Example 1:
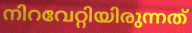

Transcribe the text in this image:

നിറവേറ്റിയിരുന്നത്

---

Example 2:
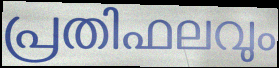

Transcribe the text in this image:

പ്രതിഫലവും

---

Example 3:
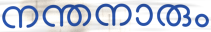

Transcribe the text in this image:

നന്തനാരും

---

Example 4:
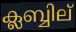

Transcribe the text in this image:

ക്ലബ്ബില്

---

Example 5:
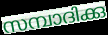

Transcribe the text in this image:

സമ്പാദിക്കു